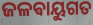
ଜଳଵାୟୁଗତ